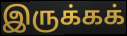
இருக்கக்